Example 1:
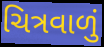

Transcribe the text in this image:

ચિત્રવાળું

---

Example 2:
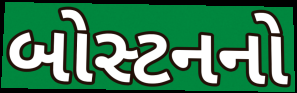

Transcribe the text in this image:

બોસ્ટનનો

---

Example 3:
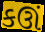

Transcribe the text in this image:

કઊં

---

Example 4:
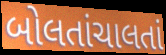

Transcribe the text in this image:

બોલતાંચાલતાં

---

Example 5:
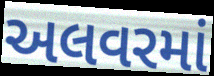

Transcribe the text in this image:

અલવરમાં